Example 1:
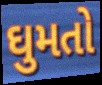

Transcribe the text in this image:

ઘુમતો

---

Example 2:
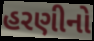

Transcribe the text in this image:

હરણીનો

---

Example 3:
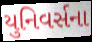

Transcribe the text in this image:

યુનિવર્સના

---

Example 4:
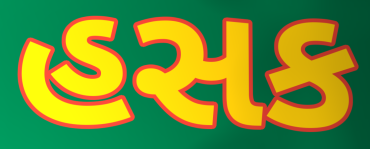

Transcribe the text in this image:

હસક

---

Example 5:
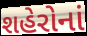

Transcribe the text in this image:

શહેરોનાં